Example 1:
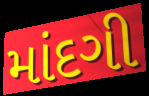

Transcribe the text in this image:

માંદગી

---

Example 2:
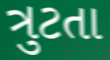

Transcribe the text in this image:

ત્રુટતા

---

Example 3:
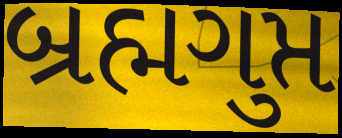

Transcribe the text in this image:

બ્રહ્મગુપ્ત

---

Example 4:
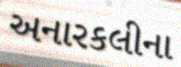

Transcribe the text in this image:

અનારકલીના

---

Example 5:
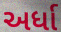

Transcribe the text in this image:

અર્ધા